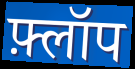
फ़्लॉप